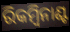
ରିକମ୍ବିନାଣ୍ଟ